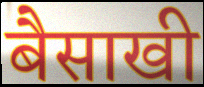
बैसाखी